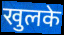
खुलके